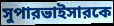
সুপারভাইসারকে